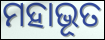
ମହାଭୂତ